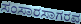
ಸಂಸಾರಸಾಗರವ